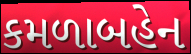
કમળાબહેન